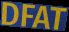
DFAT